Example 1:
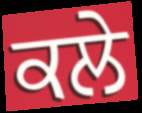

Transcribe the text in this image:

ਕਲੇ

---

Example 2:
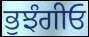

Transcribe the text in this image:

ਭੁਝੰਗੀਓ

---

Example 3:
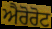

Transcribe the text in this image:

ਐਰੋਰੋਟ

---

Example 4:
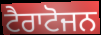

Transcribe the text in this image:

ਟੈਰਾਟੋਜਨ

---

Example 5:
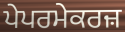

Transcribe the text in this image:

ਪੇਪਰਮੇਕਰਜ਼